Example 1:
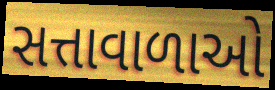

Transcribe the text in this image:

સત્તાવાળાઓ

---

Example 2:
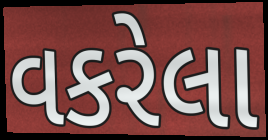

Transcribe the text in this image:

વકરેલા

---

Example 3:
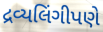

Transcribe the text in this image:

દ્રવ્યલિંગીપણે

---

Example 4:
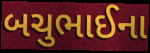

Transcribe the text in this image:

બચુભાઈના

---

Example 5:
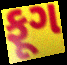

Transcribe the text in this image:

ફૂગ